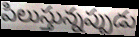
పిలుస్తున్నప్పుడు